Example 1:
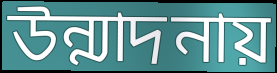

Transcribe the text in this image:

উন্মাদনায়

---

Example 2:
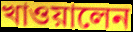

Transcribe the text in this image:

খাওয়ালেন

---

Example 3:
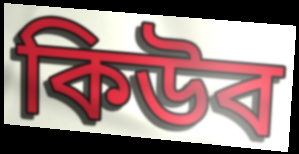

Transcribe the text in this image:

কিউব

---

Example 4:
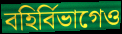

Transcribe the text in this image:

বহির্বিভাগেও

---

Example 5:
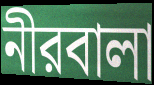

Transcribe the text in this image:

নীরবালা